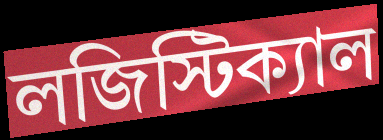
লজিস্টিক্যাল